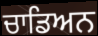
ਚਾਡਿਅਨ